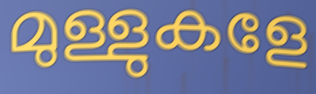
മുള്ളുകളേ